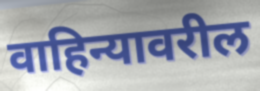
वाहिन्यावरील